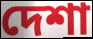
দেশা